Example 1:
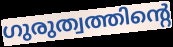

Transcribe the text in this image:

ഗുരുത്വത്തിന്റെ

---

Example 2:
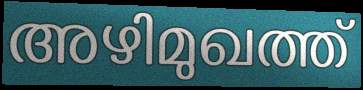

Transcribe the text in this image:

അഴിമുഖത്ത്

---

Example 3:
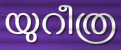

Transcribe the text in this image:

യുറീത്ര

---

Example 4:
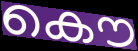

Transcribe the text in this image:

കൌ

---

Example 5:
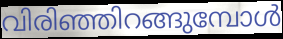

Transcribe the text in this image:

വിരിഞ്ഞിറങ്ങുമ്പോൾ